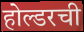
होल्डरची